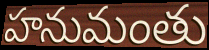
హనుమంతు